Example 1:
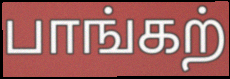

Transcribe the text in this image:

பாங்கற்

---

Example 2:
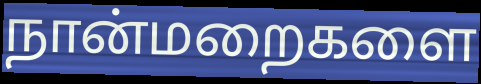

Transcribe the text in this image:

நான்மறைகளை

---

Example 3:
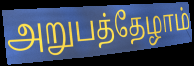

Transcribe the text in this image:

அறுபத்தேழாம்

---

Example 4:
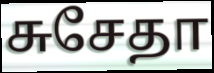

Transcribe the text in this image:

சுசேதா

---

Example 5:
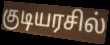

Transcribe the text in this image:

குடியரசில்